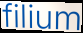
filium